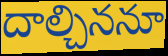
దాల్చిననూ